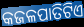
କଜଳପାତିଟିଏ